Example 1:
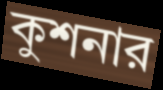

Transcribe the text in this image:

কুশনার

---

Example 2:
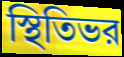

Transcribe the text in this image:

স্থিতিভর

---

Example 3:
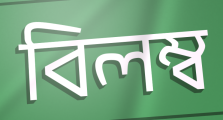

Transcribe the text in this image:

বিলম্ব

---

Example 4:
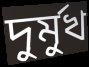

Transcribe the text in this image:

দুর্মুখ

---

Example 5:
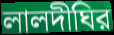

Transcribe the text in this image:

লালদীঘির